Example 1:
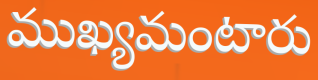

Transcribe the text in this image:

ముఖ్యమంటారు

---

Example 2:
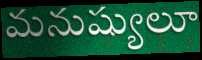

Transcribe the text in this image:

మనుష్యులూ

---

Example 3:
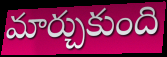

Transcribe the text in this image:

మార్చుకుంది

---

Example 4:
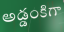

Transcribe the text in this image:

అడ్డంకిగా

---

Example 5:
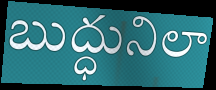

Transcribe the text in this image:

బుద్ధునిలా